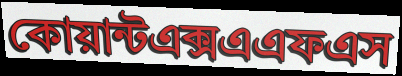
কোয়ান্টএক্সএএফএস